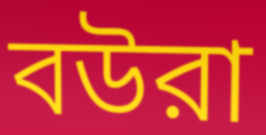
বউরা